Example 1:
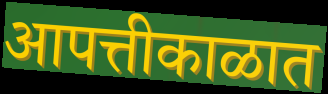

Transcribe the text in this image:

आपत्तीकाळात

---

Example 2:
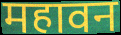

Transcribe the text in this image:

महावन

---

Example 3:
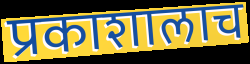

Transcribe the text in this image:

प्रकाशालाच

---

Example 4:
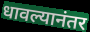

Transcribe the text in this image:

धावल्यानंतर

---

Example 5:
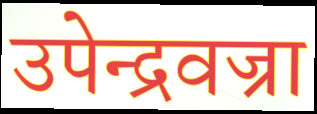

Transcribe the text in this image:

उपेन्द्रवज्रा